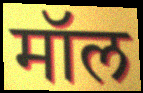
मॉल